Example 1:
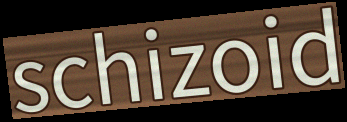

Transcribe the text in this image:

schizoid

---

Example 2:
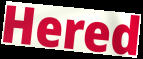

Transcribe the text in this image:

Hered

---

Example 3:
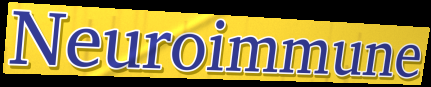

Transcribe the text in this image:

Neuroimmune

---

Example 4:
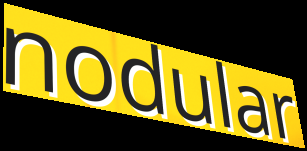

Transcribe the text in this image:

nodular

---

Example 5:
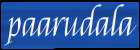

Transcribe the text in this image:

paarudala